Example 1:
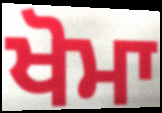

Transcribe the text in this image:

ਖੋਮਾ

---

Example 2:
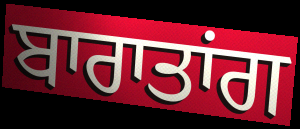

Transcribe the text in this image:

ਬਾਰਾਤਾਂਗ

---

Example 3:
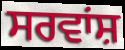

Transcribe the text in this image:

ਸਰਵਾਂਸ਼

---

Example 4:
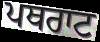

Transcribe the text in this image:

ਪਥਰਾਟ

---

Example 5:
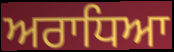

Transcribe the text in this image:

ਅਰਾਧਿਆ